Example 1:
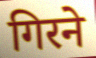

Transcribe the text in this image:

गिरने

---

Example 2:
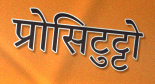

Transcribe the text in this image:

प्रोसिटुट्टो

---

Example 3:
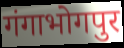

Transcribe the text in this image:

गंगाभोगपुर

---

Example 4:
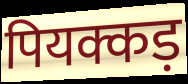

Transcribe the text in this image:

पियक्कड़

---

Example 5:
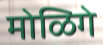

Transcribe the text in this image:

मोळिगे